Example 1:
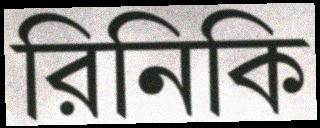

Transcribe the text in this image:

রিনিকি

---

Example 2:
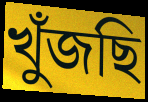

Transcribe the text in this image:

খুঁজছি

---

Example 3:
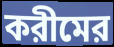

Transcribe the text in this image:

করীমের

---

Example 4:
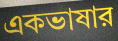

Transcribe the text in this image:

একভাষার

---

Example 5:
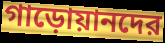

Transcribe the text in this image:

গাড়োয়ানদের